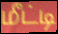
மீட்டி